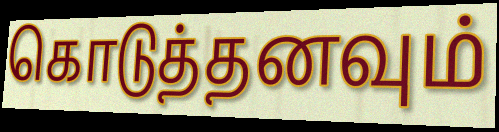
கொடுத்தனவும்